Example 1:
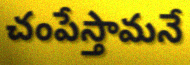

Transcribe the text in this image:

చంపేస్తామనే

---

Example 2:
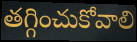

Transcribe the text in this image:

తగ్గించుకోవాలి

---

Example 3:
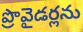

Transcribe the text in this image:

ప్రొవైడర్లను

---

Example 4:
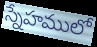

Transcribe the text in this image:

స్నేహములో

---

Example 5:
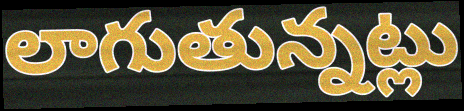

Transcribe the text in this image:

లాగుతున్నట్లు